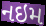
નઇમ